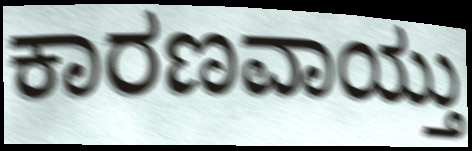
ಕಾರಣವಾಯ್ತು